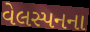
વેલસ્પનના